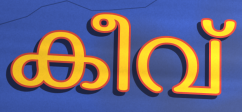
കീവ്